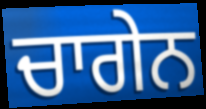
ਚਾਗੇਨ